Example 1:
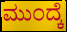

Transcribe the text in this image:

ಮುಂದ್ಕೆ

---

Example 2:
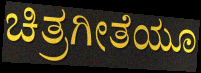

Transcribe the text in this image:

ಚಿತ್ರಗೀತೆಯೂ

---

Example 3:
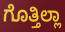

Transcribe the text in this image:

ಗೊತ್ತಿಲ್ಲಾ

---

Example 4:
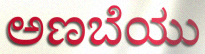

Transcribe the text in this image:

ಅಣಬೆಯು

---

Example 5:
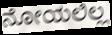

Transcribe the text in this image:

ನೋಯಲಿಲ್ಲ